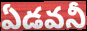
ఏడవనీ